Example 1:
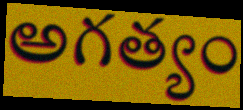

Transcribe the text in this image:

అగత్యం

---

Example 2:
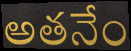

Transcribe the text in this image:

అతనేం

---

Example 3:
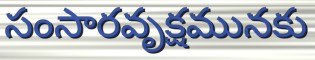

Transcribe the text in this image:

సంసారవృక్షమునకు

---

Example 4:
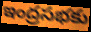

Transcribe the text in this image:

ఇంద్రసభకు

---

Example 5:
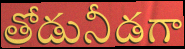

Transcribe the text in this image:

తోడునీడగా